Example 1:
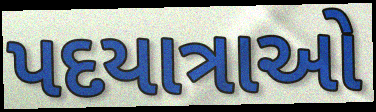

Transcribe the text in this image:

પદયાત્રાઓ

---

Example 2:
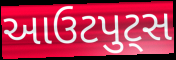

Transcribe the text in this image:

આઉટપુટ્સ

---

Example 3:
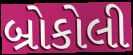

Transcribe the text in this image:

બ્રોકોલી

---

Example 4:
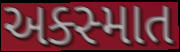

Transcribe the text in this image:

અક્સ્માત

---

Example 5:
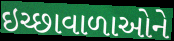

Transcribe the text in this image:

ઇચ્છાવાળાઓને